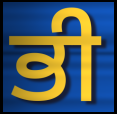
ਭੀ